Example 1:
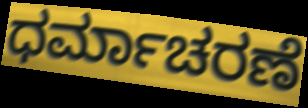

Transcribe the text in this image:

ಧರ್ಮಾಚರಣೆ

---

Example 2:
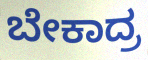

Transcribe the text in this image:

ಬೇಕಾದ್ರ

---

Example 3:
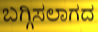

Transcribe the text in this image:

ಬಗ್ಗಿಸಲಾಗದ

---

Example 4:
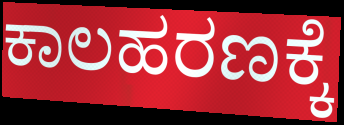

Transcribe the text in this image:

ಕಾಲಹರಣಕ್ಕೆ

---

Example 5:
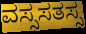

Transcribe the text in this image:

ವಸ್ಸಸತಸ್ಸ